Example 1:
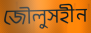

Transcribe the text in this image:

জৌলুসহীন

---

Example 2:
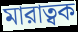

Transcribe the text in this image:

মারাত্বক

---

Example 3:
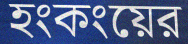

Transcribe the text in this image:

হংকংয়ের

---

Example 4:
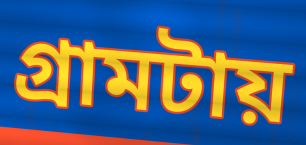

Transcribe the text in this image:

গ্রামটায়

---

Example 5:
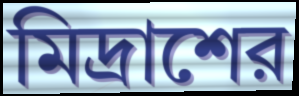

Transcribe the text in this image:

মিদ্রাশের